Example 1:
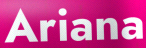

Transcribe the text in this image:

Ariana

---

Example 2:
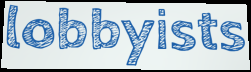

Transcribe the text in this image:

lobbyists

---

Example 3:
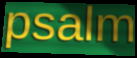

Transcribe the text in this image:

psalm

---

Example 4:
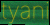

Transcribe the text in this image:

tyani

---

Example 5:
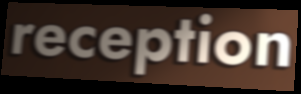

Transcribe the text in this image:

reception